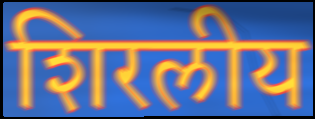
शिरलीय